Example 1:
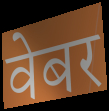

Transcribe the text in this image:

वेबर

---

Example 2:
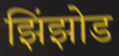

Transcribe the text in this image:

झिंझोड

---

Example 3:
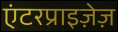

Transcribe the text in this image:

एंटरप्राइज़ेज़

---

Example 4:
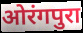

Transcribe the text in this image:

ओरंगपुरा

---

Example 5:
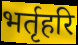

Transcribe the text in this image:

भर्तृहरि